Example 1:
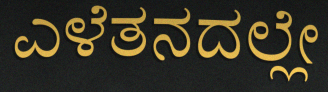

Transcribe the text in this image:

ಎಳೆತನದಲ್ಲೇ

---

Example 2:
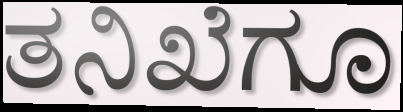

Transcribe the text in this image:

ತನಿಖೆಗೂ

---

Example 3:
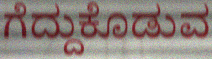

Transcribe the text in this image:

ಗೆದ್ದುಕೊಡುವ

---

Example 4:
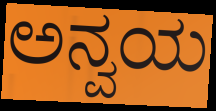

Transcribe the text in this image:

ಅನ್ವಯ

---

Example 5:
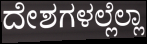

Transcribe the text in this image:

ದೇಶಗಳಲ್ಲೆಲ್ಲಾ